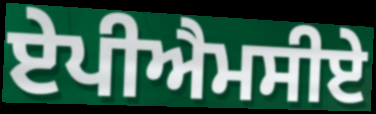
ਏਪੀਐਮਸੀਏ